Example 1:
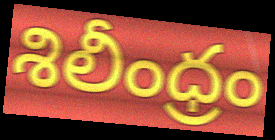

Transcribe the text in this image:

శిలీంధ్రం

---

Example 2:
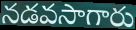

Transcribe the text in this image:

నడవసాగారు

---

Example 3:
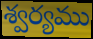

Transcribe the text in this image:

శ్వర్యము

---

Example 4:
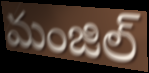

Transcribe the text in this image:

మంజిల్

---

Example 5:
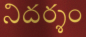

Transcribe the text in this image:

నిదర్శం